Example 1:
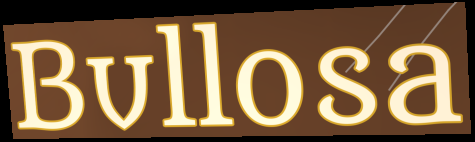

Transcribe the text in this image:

Bullosa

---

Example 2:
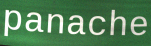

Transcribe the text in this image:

panache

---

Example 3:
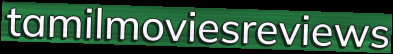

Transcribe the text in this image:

tamilmoviesreviews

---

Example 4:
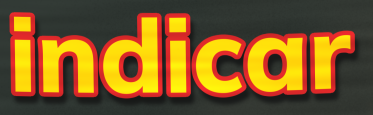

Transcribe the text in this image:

indicar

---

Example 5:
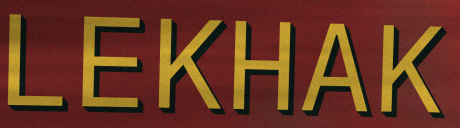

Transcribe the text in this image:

LEKHAK